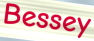
Bessey